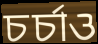
চর্চাও